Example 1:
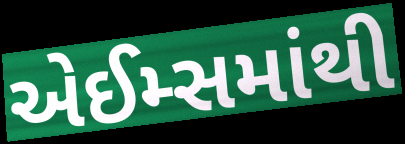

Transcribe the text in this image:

એઈમ્સમાંથી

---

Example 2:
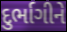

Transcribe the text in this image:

દુર્ભાગીને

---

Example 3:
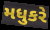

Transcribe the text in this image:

મધુકરે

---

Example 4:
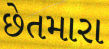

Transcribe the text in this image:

છેતમારા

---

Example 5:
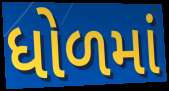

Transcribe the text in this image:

ધોળમાં